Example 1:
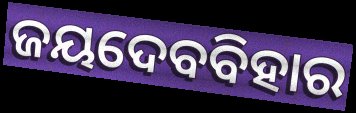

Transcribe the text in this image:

ଜୟଦେବବିହାର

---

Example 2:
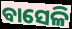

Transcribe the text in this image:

ବାସେଳି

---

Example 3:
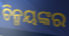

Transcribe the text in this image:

ଚିନ୍ମୟଙ୍କର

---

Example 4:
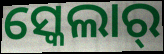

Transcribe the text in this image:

ସ୍କେଲାର୍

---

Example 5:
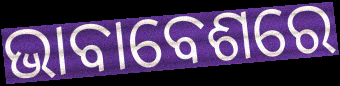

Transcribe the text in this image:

ଭାବାବେଶରେ